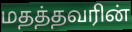
மதத்தவரின்